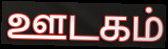
ஊடகம்